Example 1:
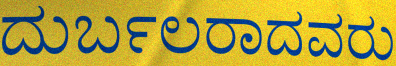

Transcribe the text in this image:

ದುರ್ಬಲರಾದವರು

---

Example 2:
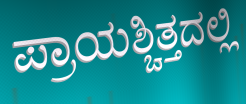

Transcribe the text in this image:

ಪ್ರಾಯಶ್ಚಿತ್ತದಲ್ಲಿ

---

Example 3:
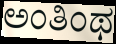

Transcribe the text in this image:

ಅಂತಿಂಥ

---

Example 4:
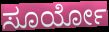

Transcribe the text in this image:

ಸೂರ್ಯೋ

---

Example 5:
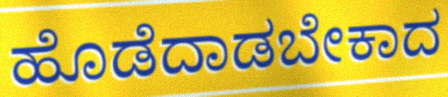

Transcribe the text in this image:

ಹೊಡೆದಾಡಬೇಕಾದ